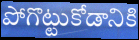
పోగొట్టుకోడానికి